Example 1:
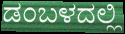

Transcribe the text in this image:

ಡಂಬಳದಲ್ಲಿ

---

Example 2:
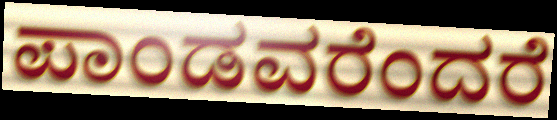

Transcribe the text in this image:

ಪಾಂಡವರೆಂದರೆ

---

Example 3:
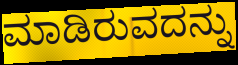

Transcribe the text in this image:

ಮಾಡಿರುವದನ್ನು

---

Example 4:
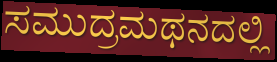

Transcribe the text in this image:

ಸಮುದ್ರಮಥನದಲ್ಲಿ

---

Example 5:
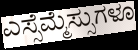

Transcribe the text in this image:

ಎಸ್ಸೆಮ್ಮೆಸ್ಸುಗಳೂ